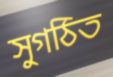
সুগঠিত